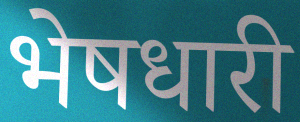
भेषधारी